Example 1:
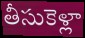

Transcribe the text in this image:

తీసుకెళ్లా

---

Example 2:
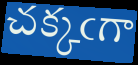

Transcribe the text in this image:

చక్కఁగా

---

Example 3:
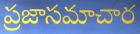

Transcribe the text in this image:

ప్రజాసమాచార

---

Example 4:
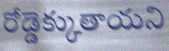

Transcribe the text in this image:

రోడ్డెక్కుతాయని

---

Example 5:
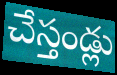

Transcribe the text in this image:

చేస్తండ్లు